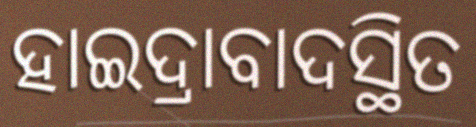
ହାଇଦ୍ରାବାଦସ୍ଥିତ